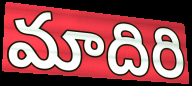
మాదిరి